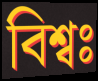
বিশ্বঃ